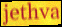
jethva